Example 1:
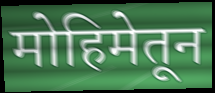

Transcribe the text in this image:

मोहिमेतून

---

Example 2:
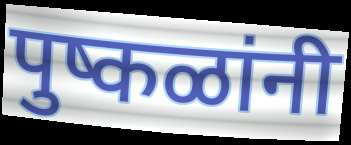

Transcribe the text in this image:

पुष्कळांनी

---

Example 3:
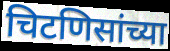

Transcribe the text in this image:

चिटणिसांच्या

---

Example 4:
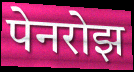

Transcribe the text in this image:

पेनरोझ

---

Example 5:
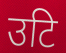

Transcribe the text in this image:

उटि